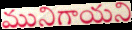
మునిగాయని